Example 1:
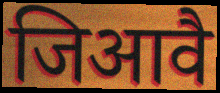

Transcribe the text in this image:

जिआवै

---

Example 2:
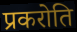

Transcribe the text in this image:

प्रकरोति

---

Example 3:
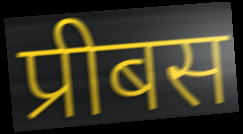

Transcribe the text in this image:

प्रीबस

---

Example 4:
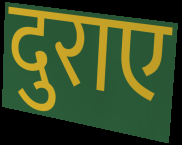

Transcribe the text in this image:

दुराए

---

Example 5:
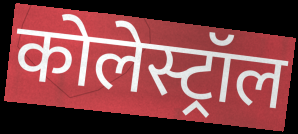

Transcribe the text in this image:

कोलेस्‍ट्रॉल